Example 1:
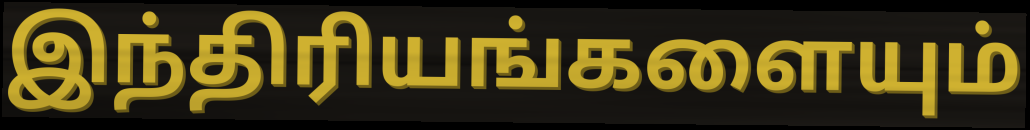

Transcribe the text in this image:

இந்திரியங்களையும்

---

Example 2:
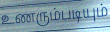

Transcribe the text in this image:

உணரும்படியும்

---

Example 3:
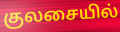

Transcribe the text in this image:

குலசையில்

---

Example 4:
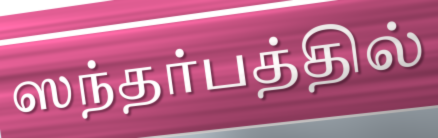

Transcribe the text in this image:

ஸந்தர்பத்தில்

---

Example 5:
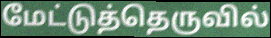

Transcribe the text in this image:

மேட்டுத்தெருவில்